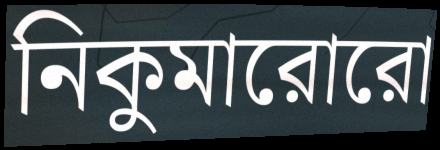
নিকুমারোরো